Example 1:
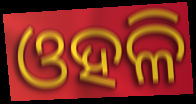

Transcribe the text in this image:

ଓହଳି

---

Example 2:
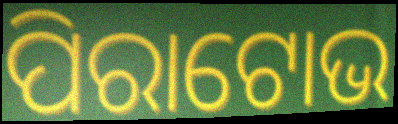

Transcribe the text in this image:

ପିରାଟୋଭ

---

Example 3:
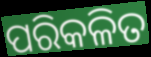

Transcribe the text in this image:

ପରିକଳିତ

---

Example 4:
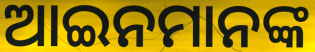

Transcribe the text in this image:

ଆଇନମାନଙ୍କ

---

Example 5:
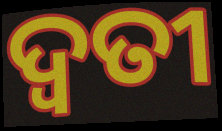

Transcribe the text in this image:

ଦ୍ଵତୀ